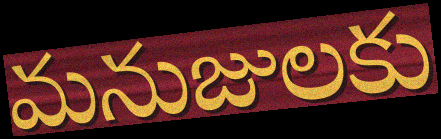
మనుజులకు